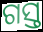
ଗସ୍ତ